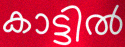
കാട്ടിൽ